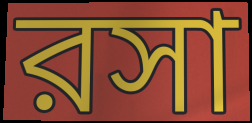
রসা